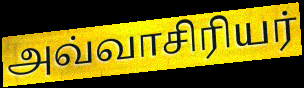
அவ்வாசிரியர்